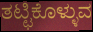
ತಟ್ಟಿಕೊಳ್ಳುವ